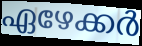
ഏഴേക്കർ